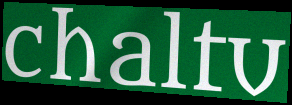
chaltu